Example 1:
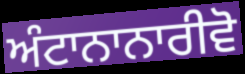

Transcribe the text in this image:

ਅੰਟਾਨਾਨਾਰੀਵੋ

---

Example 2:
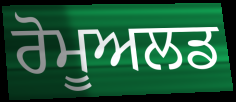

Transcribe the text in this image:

ਰੋਮੂਅਲਡ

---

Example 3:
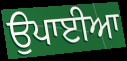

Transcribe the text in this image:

ਉਪਾਈਆ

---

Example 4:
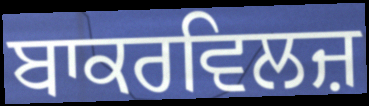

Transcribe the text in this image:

ਬਾਕਰਵਿਲਜ਼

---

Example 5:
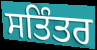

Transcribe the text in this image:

ਸਤਿੰਤਰ